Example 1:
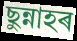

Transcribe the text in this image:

ছুন্নাহৰ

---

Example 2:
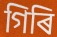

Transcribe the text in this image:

গিৰি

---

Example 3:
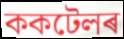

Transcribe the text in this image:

ককটেলৰ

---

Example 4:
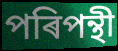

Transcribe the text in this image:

পৰিপন্থী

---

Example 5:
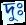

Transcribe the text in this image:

দুঃ